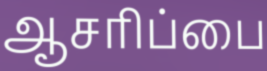
ஆசரிப்பை